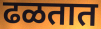
ढळतात